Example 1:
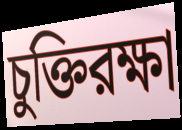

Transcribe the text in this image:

চুক্তিরক্ষা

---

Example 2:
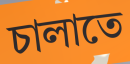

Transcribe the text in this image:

চালাতে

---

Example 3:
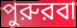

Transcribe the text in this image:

পুরুরবা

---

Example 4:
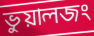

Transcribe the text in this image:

ভুয়ালজং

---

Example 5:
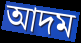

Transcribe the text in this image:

আদম